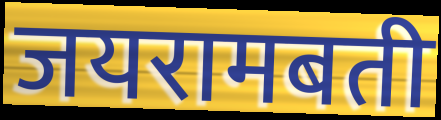
जयरामबती